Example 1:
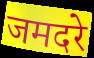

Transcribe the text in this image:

जमदरे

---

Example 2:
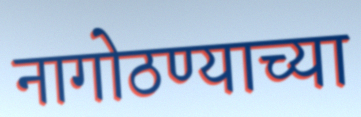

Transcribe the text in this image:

नागोठण्याच्या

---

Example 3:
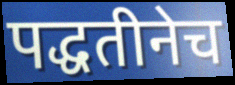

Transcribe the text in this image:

पद्धतीनेच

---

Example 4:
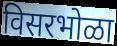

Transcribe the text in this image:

विसरभोळा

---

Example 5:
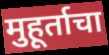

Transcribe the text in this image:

मुहूर्ताचा